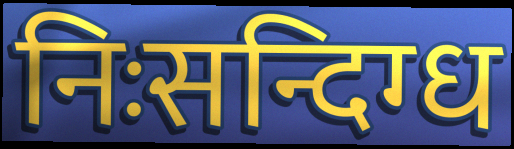
निःसन्दिग्ध